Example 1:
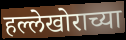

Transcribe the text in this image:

हल्लेखोराच्या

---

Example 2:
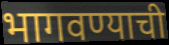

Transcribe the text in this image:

भागवण्याची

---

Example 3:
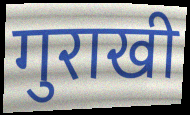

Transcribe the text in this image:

गुराखी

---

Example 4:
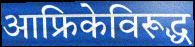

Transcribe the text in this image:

आफ्रिकेविरूद्ध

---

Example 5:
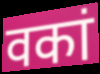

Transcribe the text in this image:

वकां